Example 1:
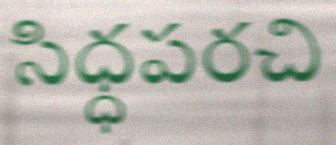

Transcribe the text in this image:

సిధ్ధపరచి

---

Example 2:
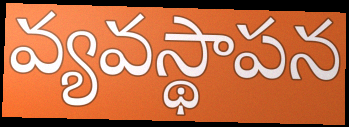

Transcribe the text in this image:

వ్యవస్థాపన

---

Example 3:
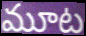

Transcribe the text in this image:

మూట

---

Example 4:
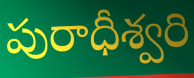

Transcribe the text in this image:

పురాధీశ్వరి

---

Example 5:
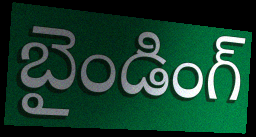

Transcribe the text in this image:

బైండింగ్